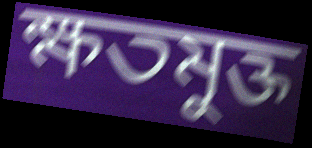
ক্ষতমুক্ত